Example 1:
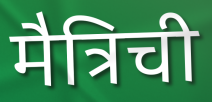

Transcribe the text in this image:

मैत्रिची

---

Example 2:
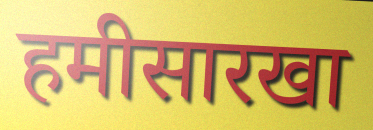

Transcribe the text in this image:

हमीसारखा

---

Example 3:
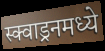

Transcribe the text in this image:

स्क्वाड्रनमध्ये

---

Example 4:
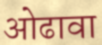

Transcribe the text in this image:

ओढावा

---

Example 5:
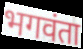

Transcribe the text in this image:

भगवंता